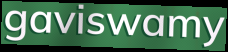
gaviswamy